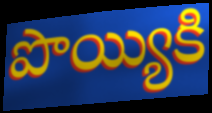
పొయ్యికి